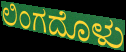
ಲಿಂಗದೊಳು